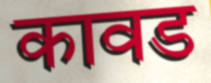
कावड